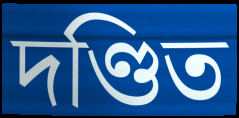
দণ্ডিত